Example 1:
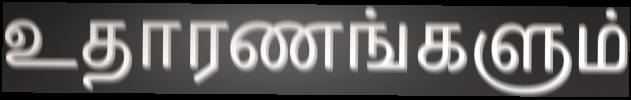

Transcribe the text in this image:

உதாரணங்களும்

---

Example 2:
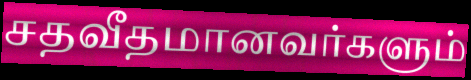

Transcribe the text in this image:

சதவீதமானவர்களும்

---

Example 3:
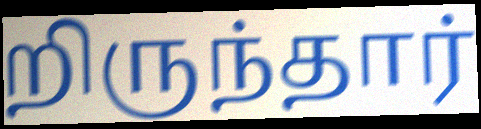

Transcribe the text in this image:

றிருந்தார்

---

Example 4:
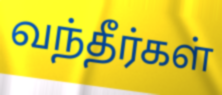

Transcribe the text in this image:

வந்தீர்கள்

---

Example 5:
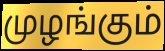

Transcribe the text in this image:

முழங்கும்